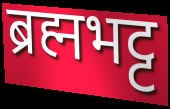
ब्रह्मभट्ट